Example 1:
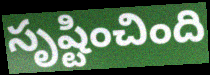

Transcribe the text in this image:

సృష్టించింది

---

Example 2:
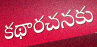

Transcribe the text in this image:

కథారచనకు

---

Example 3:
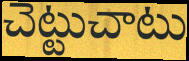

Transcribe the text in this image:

చెట్టుచాటు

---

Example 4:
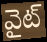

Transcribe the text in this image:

వైట్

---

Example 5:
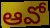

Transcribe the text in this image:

ఆవో